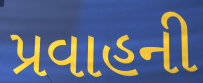
પ્રવાહની